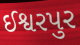
ઈશ્વરપુર